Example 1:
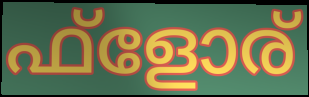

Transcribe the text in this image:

ഫ്ളോര്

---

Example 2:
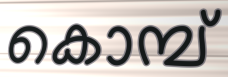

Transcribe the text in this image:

കൊമ്പ്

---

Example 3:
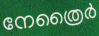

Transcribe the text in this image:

നേത്രൈർ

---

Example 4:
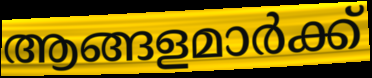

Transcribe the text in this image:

ആങ്ങളമാർക്ക്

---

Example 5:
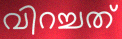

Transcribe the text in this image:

വിറച്ചത്